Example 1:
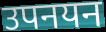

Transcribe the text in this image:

उपनयन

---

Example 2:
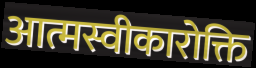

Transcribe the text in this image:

आत्मस्वीकारोक्ति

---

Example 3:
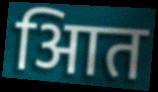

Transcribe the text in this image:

आित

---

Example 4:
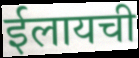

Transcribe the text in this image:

ईलायची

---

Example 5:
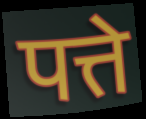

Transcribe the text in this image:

पत्ते